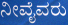
ನೀವೈವರು